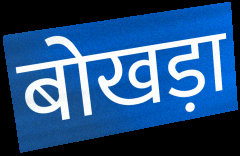
बोखड़ा